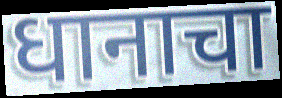
धानाचा